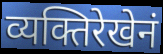
व्यक्तिरेखेनं